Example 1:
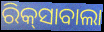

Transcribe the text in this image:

ରିକ୍‍ସାବାଲା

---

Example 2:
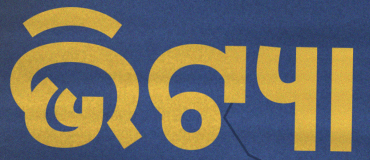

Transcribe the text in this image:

ଭିଟ୍ୟା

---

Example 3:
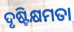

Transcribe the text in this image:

ଦୃଷ୍ଟିକ୍ଷମତା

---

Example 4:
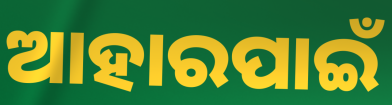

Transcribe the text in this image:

ଆହାରପାଇଁ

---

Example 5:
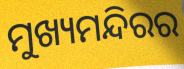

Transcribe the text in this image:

ମୁଖ୍ୟମନ୍ଦିରର